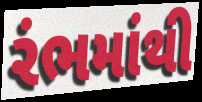
રંભમાંથી